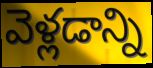
వెళ్లడాన్ని